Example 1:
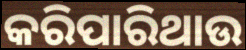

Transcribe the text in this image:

କରିପାରିଥାଉ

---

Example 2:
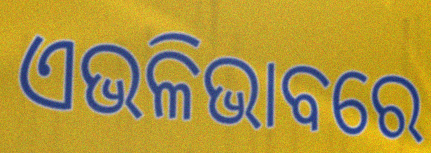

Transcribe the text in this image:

ଏଭଳିଭାବରେ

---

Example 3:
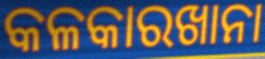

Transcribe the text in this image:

କଳକାରଖାନା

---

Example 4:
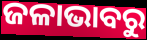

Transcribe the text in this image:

ଜଳାଭାବରୁ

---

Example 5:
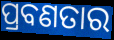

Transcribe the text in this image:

ପ୍ରବଣତାର